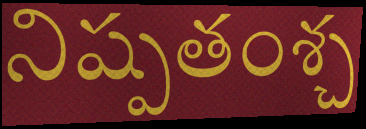
నిష్పతంశ్చ